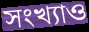
সংখ্যাও